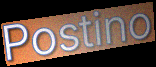
Postino